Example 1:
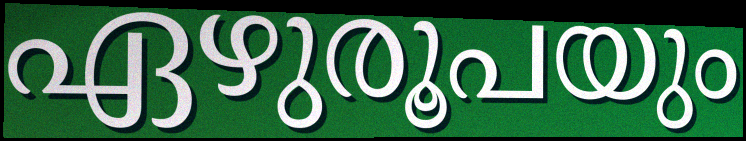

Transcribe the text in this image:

ഏഴുരൂപയും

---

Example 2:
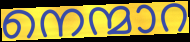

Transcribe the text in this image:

നെന്മാറ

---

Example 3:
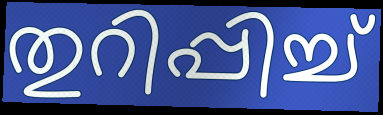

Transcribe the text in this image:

തുറിപ്പിച്ച്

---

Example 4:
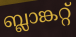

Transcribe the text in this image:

ബ്ലാങ്കറ്റ്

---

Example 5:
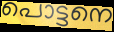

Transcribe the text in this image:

പൊട്ടനെ